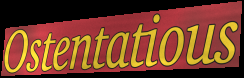
Ostentatious